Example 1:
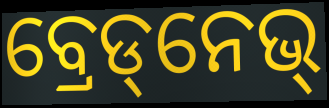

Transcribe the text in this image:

ବ୍ରେଡ୍‌ନେଭ୍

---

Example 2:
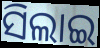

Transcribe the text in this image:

ସିଲାଇ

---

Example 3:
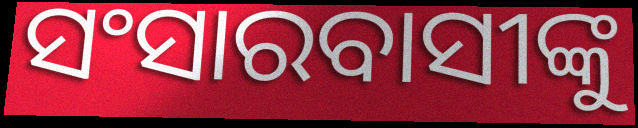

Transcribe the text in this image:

ସଂସାରବାସୀଙ୍କୁ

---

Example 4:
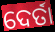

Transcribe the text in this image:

ଦେର୍ତା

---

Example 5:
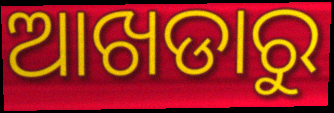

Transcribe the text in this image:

ଆଖଡାରୁ